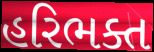
હરિભક્ત